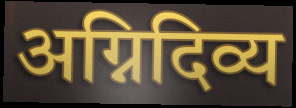
अग्निदिव्य